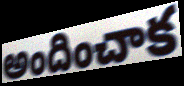
అందించాక